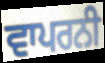
ਵਾਪਰਨੀ